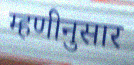
म्हणीनुसार